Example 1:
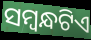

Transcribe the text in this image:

ସମ୍ୱନ୍ଧଟିଏ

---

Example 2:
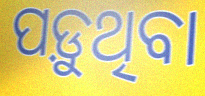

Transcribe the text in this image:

ପଡ଼ୁଥିବା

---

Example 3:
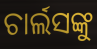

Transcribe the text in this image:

ଚାର୍ଲସଙ୍କୁ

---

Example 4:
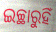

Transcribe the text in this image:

ଇଚ୍ଛାରୁହିଁ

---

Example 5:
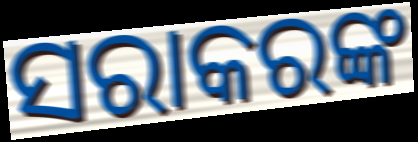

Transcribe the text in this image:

ସରାକରଙ୍କ